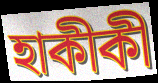
হাকীকী